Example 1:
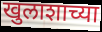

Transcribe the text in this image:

खुलाशाच्या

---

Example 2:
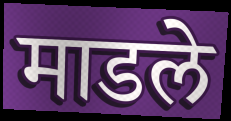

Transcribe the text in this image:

माडले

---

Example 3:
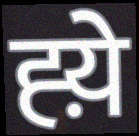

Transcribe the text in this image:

ह्य़े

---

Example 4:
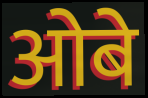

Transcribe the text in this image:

ओबे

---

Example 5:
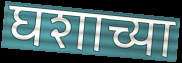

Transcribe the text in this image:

घशाच्या